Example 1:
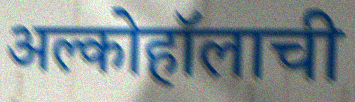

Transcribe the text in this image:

अल्कोहॉलाची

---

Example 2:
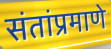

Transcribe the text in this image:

संतांप्रमाणे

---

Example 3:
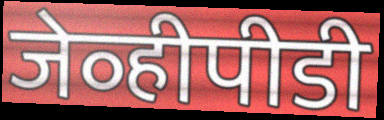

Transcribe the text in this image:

जेव्हीपीडी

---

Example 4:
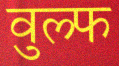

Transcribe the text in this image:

वुल्फ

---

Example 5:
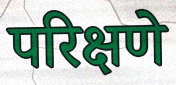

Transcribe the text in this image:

परिक्षणे